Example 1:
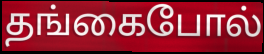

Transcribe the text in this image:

தங்கைபோல்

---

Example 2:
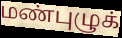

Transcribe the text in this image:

மண்புழுக்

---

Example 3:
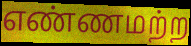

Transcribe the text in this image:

எண்ணமற்ற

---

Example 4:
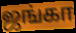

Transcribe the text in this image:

ஜங்கா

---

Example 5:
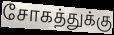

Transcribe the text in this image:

சோகத்துக்கு